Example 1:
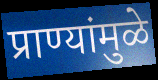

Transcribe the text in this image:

प्राण्यांमुळे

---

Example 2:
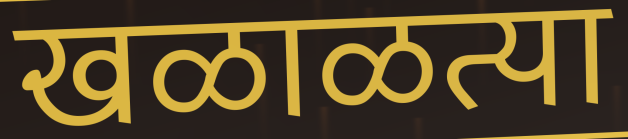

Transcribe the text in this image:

खळाळत्या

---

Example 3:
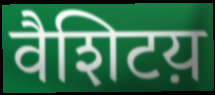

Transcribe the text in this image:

वैशिटय़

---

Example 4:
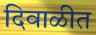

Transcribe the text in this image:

दिवाळीत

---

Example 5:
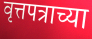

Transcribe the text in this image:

वृत्तपत्राच्या